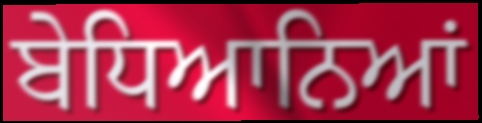
ਬੇਧਿਆਨਿਆਂ